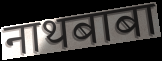
नाथबाबा